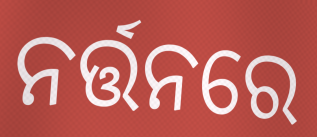
ନର୍ତ୍ତନରେ